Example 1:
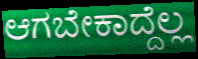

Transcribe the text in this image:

ಆಗಬೇಕಾದ್ದೆಲ್ಲ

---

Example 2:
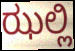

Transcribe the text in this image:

ಝಲ್ಲಿ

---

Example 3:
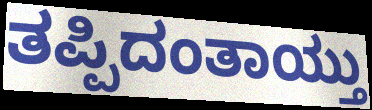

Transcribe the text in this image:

ತಪ್ಪಿದಂತಾಯ್ತು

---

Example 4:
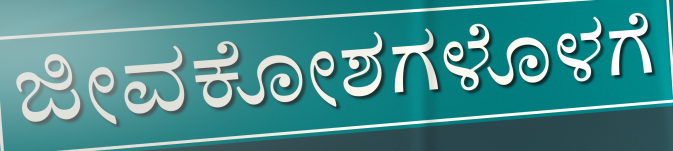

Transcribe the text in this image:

ಜೀವಕೋಶಗಳೊಳಗೆ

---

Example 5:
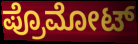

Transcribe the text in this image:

ಪ್ರೊಮೋಟ್